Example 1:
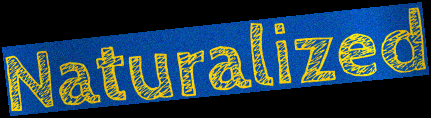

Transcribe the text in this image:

Naturalized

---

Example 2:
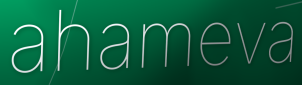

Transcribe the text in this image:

ahameva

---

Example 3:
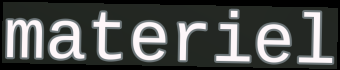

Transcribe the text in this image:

materiel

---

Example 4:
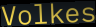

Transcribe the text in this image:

Volkes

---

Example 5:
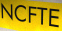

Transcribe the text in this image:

NCFTE